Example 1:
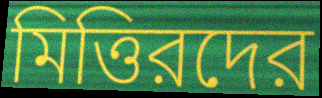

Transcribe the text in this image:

মিত্তিরদের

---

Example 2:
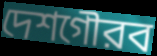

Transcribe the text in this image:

দেশগৌরব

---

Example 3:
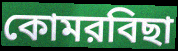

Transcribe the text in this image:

কোমরবিছা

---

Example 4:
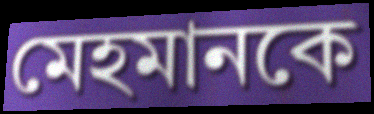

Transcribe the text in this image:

মেহমানকে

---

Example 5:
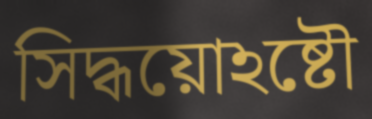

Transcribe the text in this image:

সিদ্ধয়োঽষ্টৌ